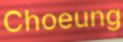
Choeung